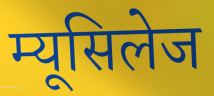
म्यूसिलेज